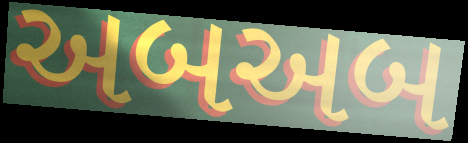
અબઅબ